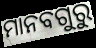
ମାନବଗୁରୁ